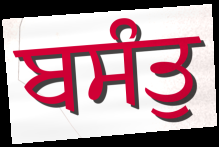
ਬਸੰਤੁ